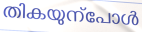
തികയുന്പോൾ